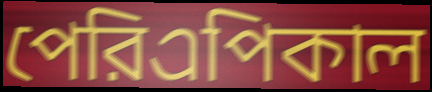
পেরিএপিকাল